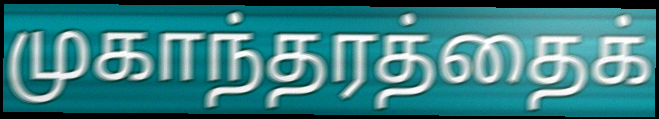
முகாந்தரத்தைக்